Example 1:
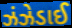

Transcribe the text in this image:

ઝંઝેડાઈ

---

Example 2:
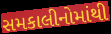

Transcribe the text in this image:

સમકાલીનોમાંથી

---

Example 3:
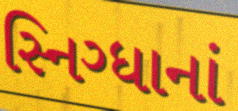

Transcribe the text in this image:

સ્નિગ્ધાનાં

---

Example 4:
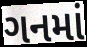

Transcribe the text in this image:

ગનમાં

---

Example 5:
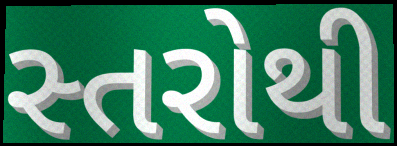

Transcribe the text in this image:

સ્તરોથી